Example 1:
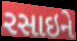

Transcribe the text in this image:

રસાઇને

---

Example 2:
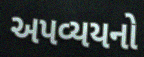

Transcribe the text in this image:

અપવ્યયનો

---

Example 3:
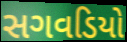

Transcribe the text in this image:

સગવડિયો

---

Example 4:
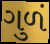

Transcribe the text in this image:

ગુળં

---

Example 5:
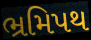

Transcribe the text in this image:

ભ્રમિપથ